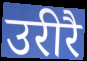
उरीरै